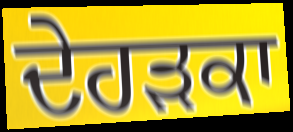
ਦੇਹੜਕਾ